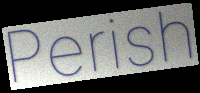
Perish